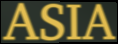
ASIA